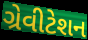
ગ્રેવીટેશન